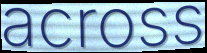
across